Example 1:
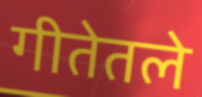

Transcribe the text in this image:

गीतेतले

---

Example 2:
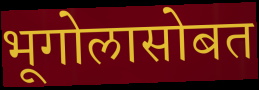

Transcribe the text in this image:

भूगोलासोबत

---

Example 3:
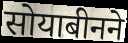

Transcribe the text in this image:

सोयाबीनने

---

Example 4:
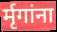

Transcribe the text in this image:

र्मृगांना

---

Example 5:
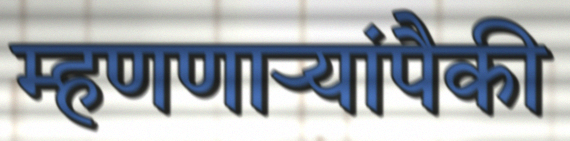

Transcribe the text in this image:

म्हणणाऱ्यांपैकी